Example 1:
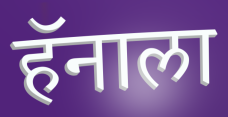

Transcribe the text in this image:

हॅनाला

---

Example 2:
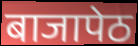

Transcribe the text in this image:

बाजापेठ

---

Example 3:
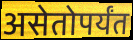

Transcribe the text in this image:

असेतोपर्यंत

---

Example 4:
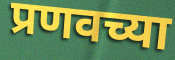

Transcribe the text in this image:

प्रणवच्या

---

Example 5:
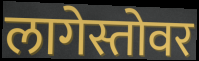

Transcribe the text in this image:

लागेस्तोवर